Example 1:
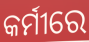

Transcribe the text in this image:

କର୍ମୀରେ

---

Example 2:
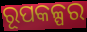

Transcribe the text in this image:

ରୂପକଳ୍ପର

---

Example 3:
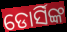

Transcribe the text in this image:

ଡୋର୍ସିଙ୍କ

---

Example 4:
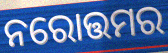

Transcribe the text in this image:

ନରୋତ୍ତମର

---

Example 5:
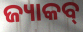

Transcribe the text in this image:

ଜ୍ୟାକବ୍